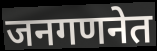
जनगणनेत